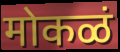
मोकळं